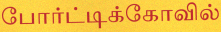
போர்ட்டிக்கோவில்